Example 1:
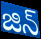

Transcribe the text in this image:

జిన్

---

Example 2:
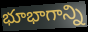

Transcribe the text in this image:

భూభాగాన్ని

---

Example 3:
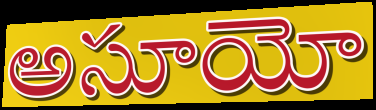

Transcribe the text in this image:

అసూయో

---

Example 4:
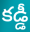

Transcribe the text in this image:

కడ్డీ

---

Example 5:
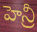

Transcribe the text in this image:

హెన్రీ